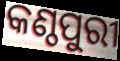
କଣ୍ଠପୁରୀ